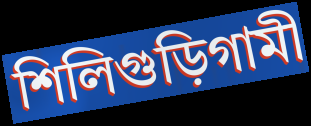
শিলিগুড়িগামী